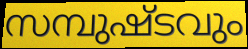
സമ്പുഷ്ടവും